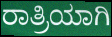
ರಾತ್ರಿಯಾಗಿ